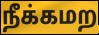
நீக்கமற